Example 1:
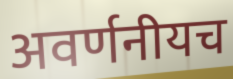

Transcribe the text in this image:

अवर्णनीयच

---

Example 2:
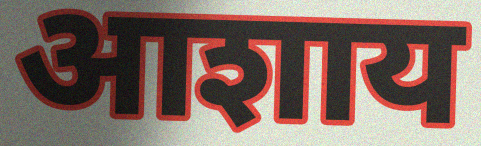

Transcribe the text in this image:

आशाय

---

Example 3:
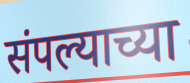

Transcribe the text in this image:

संपल्याच्या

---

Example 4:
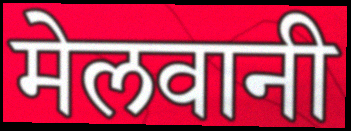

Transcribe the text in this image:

मेलवानी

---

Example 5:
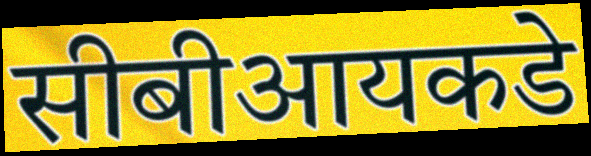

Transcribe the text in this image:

सीबीआयकडे